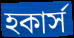
হকার্স